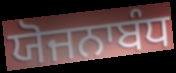
ਯੋਜਨਾਬੰਧ